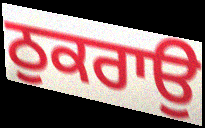
ਠੁਕਰਾਉ